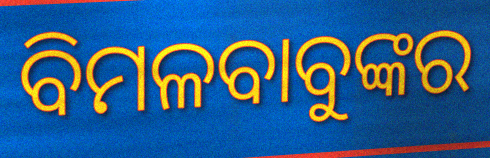
ବିମଳବାବୁଙ୍କର